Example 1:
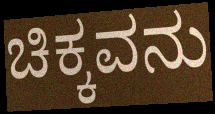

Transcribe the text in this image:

ಚಿಕ್ಕವನು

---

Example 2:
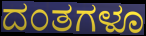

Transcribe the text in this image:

ದಂತಗಳೂ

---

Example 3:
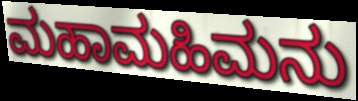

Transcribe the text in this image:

ಮಹಾಮಹಿಮನು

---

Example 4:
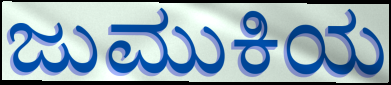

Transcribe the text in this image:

ಜುಮುಕಿಯ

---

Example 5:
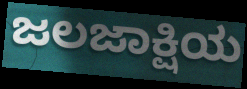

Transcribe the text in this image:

ಜಲಜಾಕ್ಷಿಯ